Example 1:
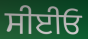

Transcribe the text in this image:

ਸੀਈਓ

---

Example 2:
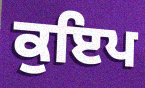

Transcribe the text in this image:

ਕੁਇਪ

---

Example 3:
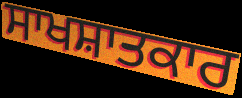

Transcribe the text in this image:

ਸਾਖਸ਼ਾਤਕਾਰ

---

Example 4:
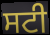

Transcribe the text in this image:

ਸਟੀ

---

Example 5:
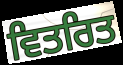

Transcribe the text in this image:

ਵਿਤਰਿਤ